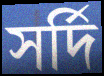
সর্দি